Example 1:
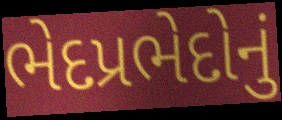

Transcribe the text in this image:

ભેદપ્રભેદોનું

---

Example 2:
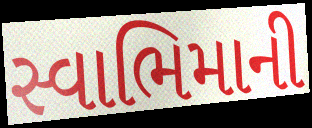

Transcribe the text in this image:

સ્વાભિમાની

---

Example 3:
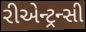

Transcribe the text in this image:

રીએન્ટ્રન્સી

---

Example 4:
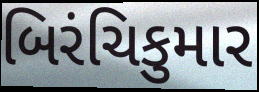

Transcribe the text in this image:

બિરંચિકુમાર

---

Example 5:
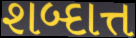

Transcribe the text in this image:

શબ્દાત્ત